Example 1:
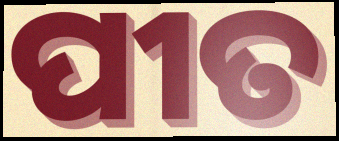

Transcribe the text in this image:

ପୀତ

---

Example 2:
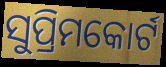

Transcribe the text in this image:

ସୁପ୍ରିମକୋର୍ଟ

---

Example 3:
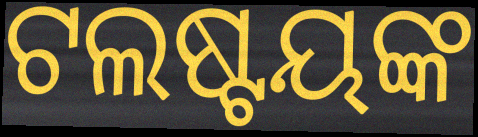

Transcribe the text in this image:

ଟଲଷ୍ଟୟଙ୍କ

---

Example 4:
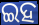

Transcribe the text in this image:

ଇହ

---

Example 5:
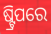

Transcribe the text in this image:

ଷ୍ଟ୍ରିପରେ